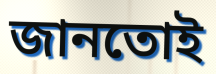
জানতোই